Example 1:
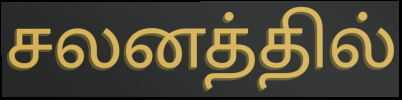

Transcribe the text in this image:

சலனத்தில்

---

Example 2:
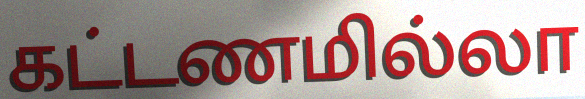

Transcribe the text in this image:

கட்டணமில்லா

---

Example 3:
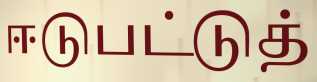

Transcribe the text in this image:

ஈடுபட்டுத்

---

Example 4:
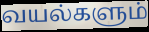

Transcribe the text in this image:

வயல்களும்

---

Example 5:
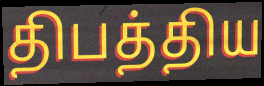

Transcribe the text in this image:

திபத்திய